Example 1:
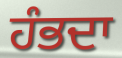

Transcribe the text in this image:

ਹੰਭਦਾ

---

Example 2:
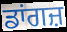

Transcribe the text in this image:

ਡਾਂਗਜ਼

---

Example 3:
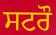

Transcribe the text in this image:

ਸਟਰੌ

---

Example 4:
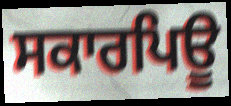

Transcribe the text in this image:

ਸਕਾਰਪਿਊ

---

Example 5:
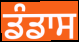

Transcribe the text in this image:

ਡੰਡਾਸ